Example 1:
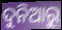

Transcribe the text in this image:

ଦୁନିଆରୁ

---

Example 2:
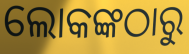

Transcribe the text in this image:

ଲୋକଙ୍କଠାରୁ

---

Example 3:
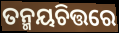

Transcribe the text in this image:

ତନ୍ମୟଚିତ୍ତରେ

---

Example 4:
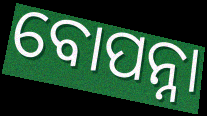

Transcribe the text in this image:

ବୋପନ୍ନା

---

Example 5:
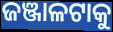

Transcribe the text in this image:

ଜଞ୍ଜାଳଟାକୁ